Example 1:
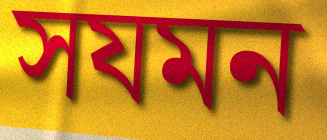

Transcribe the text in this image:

সযমন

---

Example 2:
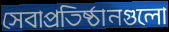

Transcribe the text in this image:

সেবাপ্রতিষ্ঠানগুলো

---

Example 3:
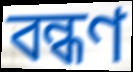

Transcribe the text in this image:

বন্ধণ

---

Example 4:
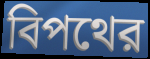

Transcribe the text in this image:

বিপথের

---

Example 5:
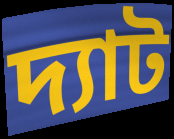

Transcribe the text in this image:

দ্যাট